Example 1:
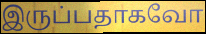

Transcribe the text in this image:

இருப்பதாகவோ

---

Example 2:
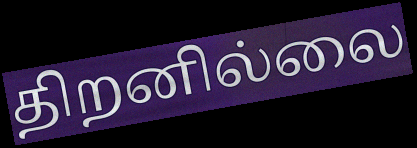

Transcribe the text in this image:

திறனில்லை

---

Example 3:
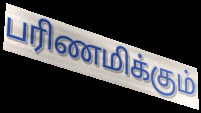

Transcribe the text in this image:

பரிணமிக்கும்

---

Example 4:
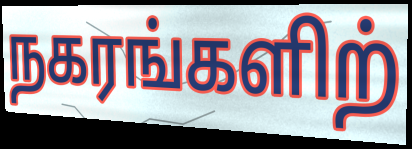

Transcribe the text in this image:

நகரங்களிற்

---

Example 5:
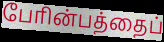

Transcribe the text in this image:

பேரின்பத்தைப்